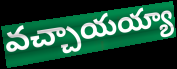
వచ్చాయయ్యా